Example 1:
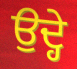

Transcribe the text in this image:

ਉਦ੍ਹੇ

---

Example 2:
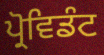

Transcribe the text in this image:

ਪ੍ਰੋਵਿਡੰਟ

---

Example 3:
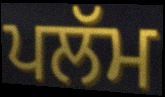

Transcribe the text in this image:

ਪਲੱਮ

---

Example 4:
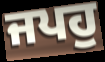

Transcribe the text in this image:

ਜਪਹੁ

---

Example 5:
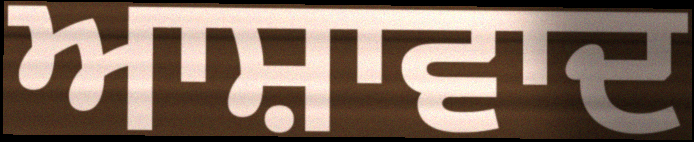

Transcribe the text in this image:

ਆਸ਼ਾਵਾਦ